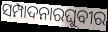
ସମ୍ପାଦନାରଘୁବୀର